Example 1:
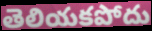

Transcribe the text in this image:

తెలియకపోదు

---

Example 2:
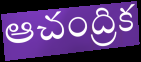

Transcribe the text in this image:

ఆచంద్రిక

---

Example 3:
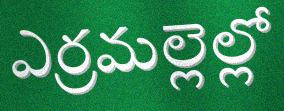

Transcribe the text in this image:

ఎర్రమల్లెల్లో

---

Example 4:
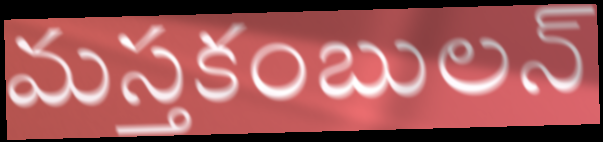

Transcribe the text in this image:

మస్తకంబులన్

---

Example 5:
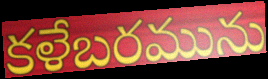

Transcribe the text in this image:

కళేబరమును